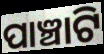
ପାଞ୍ଚାଟି